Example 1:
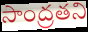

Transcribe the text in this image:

సాంద్రతని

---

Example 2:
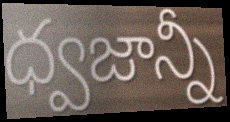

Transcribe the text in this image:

ధ్వజాన్నీ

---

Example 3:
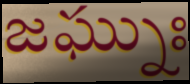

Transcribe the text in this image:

జఘ్నుః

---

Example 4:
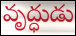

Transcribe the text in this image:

వృద్ధుడు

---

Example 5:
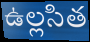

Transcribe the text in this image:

ఉల్లసిత